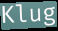
Klug